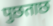
पुछताछ